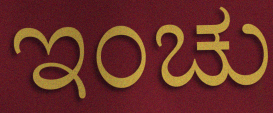
ಇಂಚು